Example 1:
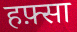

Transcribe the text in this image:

हफ़्सा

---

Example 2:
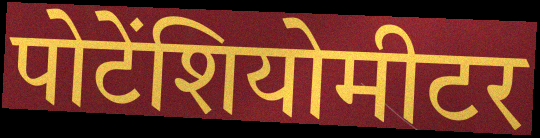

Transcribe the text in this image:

पोटेंशियोमीटर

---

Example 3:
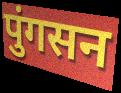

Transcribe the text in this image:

पुंगसन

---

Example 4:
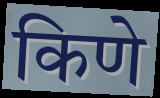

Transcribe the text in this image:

किणे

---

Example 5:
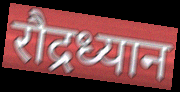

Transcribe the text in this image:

रौद्रध्यान